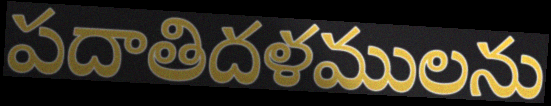
పదాతిదళములను